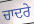
ਚਾਦਰੇ